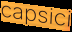
capsici